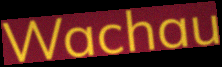
Wachau